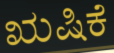
ಋಷಿಕೆ